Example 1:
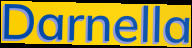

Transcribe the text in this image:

Darnella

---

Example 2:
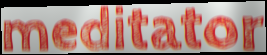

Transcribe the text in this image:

meditator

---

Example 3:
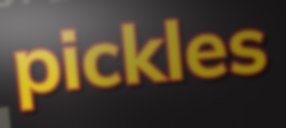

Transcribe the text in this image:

pickles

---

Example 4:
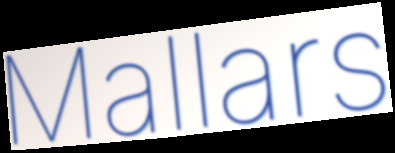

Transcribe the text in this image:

Mallars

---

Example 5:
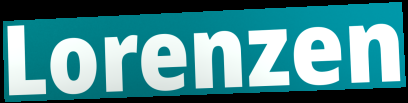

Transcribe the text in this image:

Lorenzen